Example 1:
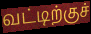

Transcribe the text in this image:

வட்டிற்குச்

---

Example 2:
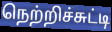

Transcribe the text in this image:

நெற்றிச்சுட்டி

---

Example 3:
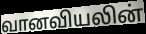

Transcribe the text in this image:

வானவியலின்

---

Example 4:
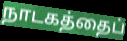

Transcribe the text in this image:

நாடகத்தைப்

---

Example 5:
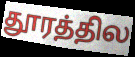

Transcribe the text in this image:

தூரத்தில